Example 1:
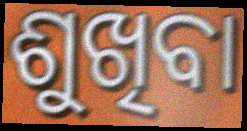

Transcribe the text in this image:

ଶୁଖିବା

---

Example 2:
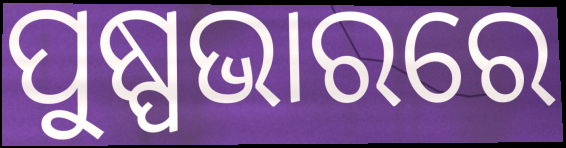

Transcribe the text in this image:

ପୁଷ୍ପଭାରରେ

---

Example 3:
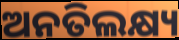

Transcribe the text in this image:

ଅନତିଲକ୍ଷ୍ୟ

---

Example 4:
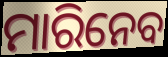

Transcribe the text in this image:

ମାରିନେବ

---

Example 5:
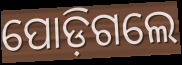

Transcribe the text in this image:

ପୋଡ଼ିଗଲେ